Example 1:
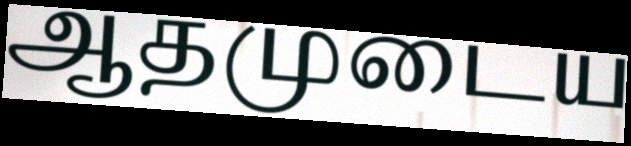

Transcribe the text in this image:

ஆதமுடைய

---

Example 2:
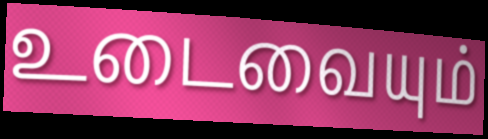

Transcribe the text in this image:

உடைவையும்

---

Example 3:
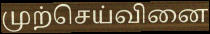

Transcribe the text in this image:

முற்செய்வினை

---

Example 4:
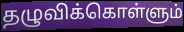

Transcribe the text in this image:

தழுவிக்கொள்ளும்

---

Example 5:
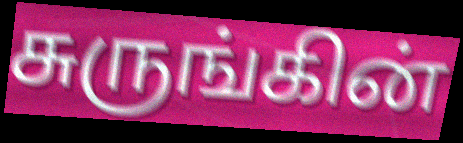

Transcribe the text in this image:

சுருங்கின்